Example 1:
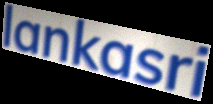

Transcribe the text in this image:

lankasri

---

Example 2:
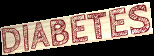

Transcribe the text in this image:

DIABETES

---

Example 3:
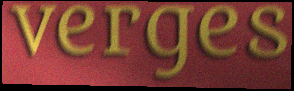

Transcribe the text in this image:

verges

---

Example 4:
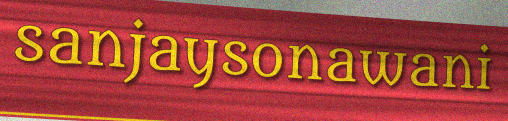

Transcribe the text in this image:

sanjaysonawani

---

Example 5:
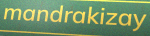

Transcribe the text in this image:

mandrakizay